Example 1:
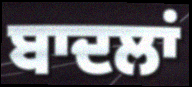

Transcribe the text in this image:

ਬਾਦਲਾਂ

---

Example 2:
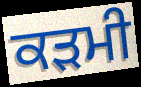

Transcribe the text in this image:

ਕੜਮੀ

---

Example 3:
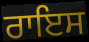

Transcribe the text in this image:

ਰਾਇਸ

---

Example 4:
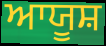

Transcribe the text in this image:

ਆਯੂਸ਼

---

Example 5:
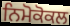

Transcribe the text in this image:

ਨਿਮੋਕੋਕਲ